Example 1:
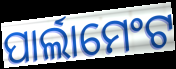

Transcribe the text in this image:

ପାର୍ଲାମେଂଟ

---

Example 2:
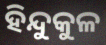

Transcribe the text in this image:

ହିନ୍ଦୁକୁଳ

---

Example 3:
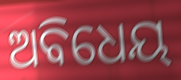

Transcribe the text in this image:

ଅବିଧେୟ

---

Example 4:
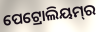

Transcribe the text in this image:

ପେଟ୍ରୋଲିୟମ୍‌ର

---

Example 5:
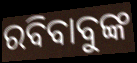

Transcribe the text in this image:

ରବିବାବୁଙ୍କ